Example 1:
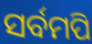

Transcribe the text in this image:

ସର୍ବମପି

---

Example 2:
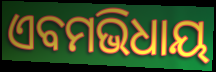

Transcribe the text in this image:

ଏବମଭିଧାୟ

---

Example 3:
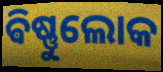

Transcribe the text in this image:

ଵିଷ୍ଣୁଲୋକ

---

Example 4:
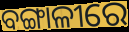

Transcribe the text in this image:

ବଙ୍ଗାଳୀରେ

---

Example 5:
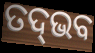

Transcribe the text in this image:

ତଦ୍‌ଭବ